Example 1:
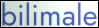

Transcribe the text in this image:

bilimale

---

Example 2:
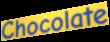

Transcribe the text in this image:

Chocolate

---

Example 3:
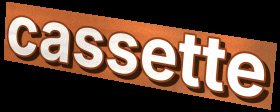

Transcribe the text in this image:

cassette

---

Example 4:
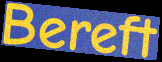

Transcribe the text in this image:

Bereft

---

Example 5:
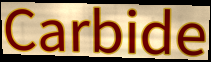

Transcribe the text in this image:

Carbide